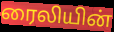
ரைலியின்